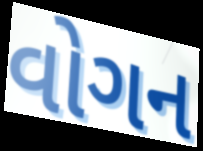
વોગન